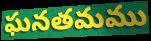
ఘనతమము